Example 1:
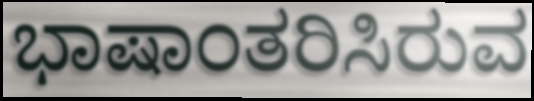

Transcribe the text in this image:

ಭಾಷಾಂತರಿಸಿರುವ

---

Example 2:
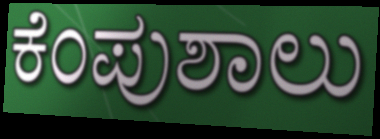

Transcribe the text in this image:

ಕೆಂಪುಶಾಲು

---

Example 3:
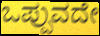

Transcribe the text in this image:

ಒಪ್ಪುವದೇ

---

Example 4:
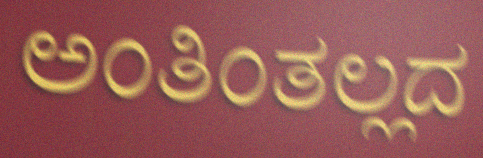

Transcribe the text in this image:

ಅಂತಿಂತಲ್ಲದ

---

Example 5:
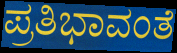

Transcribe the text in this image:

ಪ್ರತಿಭಾವಂತೆ